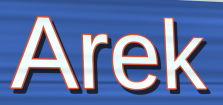
Arek